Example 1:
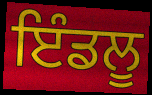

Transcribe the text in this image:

ਇੰਡਲੂ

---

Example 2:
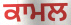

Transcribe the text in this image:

ਕਾਮਲ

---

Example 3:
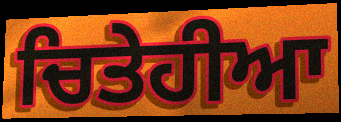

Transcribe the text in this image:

ਚਿਤੇਹੀਆ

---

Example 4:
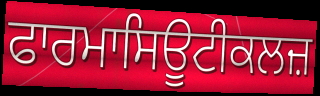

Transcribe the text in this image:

ਫਾਰਮਾਸਿਊਟੀਕਲਜ਼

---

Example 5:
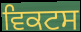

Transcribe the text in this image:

ਵਿਕਟਸ